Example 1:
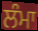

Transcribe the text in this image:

ਲੰਮਾ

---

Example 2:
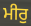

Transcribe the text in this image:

ਮੀਰੁ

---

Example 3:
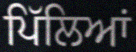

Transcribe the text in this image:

ਪਿੱਲਿਆਂ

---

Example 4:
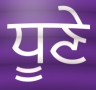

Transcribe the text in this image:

ਧੂਣੇ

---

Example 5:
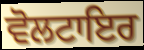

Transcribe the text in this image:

ਵੋਲਟਾਇਰ